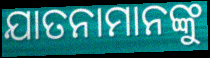
ଯାତନାମାନଙ୍କୁ